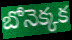
బోనెక్కక